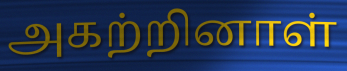
அகற்றினாள்